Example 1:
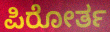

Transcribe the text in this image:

ಪಿರೋರ್ತ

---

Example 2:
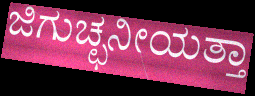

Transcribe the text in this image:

ಜಿಗುಚ್ಛನೀಯತ್ತಾ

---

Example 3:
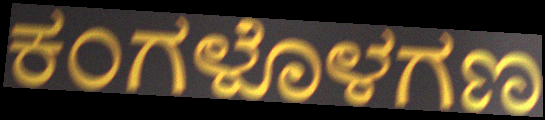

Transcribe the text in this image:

ಕಂಗಳೊಳಗಣ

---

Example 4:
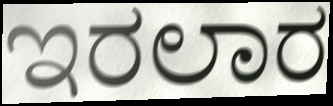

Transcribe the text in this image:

ಇರಲಾರ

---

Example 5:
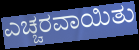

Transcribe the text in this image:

ಎಚ್ಚರವಾಯಿತು